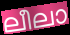
ലീലാ